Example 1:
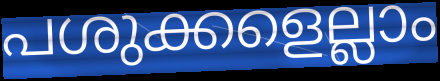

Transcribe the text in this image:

പശുക്കളെല്ലാം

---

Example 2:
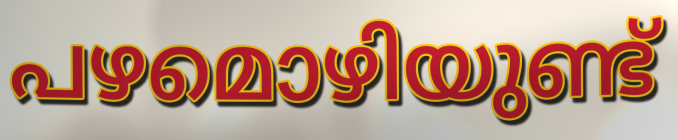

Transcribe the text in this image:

പഴമൊഴിയുണ്ട്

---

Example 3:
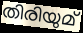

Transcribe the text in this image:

തിരിയുമ്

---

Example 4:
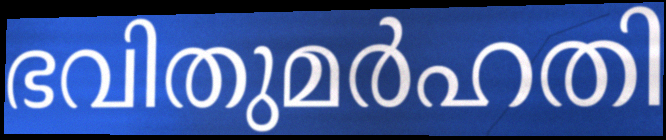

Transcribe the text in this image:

ഭവിതുമർഹതി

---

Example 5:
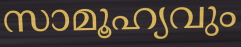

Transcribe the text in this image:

സാമൂഹ്യവും